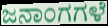
ಜನಾಂಗಗಳೆ